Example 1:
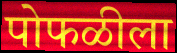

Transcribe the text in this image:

पोफळीला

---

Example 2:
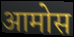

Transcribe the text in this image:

आमोस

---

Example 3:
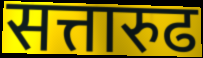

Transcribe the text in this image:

सत्तारुढ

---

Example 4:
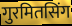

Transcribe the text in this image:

गुरमितसिंग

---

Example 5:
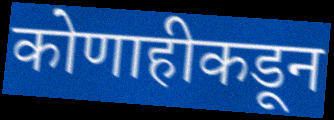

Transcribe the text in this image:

कोणाहीकडून